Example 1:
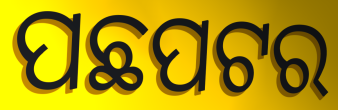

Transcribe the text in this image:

ପଛପଟର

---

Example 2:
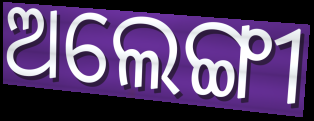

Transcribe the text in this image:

ଅଲେଙ୍ଗୀ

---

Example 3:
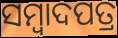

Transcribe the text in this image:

ସମ୍ବାଦପତ୍ର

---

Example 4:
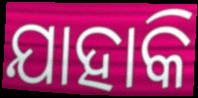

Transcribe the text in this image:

ଯାହାକି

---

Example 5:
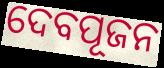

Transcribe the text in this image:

ଦେବପୂଜନ